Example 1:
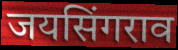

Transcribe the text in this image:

जयसिंगराव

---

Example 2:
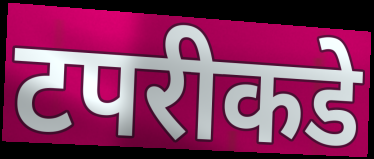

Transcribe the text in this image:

टपरीकडे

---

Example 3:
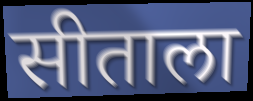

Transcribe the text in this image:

सीताला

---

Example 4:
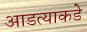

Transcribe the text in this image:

आडत्याकडे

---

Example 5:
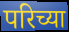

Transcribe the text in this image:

परिच्या